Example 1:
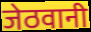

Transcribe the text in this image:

जेठवानी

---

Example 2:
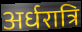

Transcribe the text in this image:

अर्धरात्रि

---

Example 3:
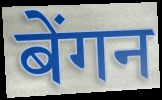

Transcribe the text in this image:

बेंगन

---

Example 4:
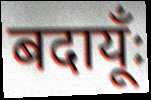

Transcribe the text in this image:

बदायूँः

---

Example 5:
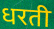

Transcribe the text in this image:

धरती